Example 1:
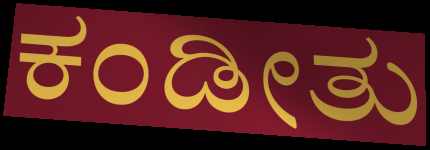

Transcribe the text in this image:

ಕಂಡೀತು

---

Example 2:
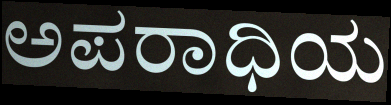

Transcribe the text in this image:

ಅಪರಾಧಿಯ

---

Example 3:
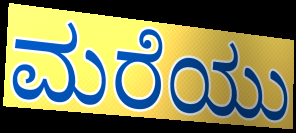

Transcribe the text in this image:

ಮರೆಯು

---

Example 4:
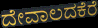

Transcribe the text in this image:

ದೇವಾಲದಕೆರೆ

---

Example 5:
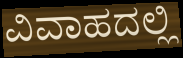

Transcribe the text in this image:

ವಿವಾಹದಲ್ಲಿ